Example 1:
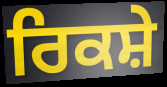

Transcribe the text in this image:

ਰਿਕਸ਼ੇ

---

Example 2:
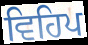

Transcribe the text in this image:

ਵਿਹਿਪ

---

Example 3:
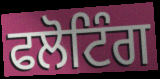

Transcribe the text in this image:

ਫਲੋਟਿੰਗ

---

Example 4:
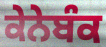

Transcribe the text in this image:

ਕੇਨੇਬੰਕ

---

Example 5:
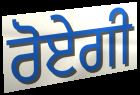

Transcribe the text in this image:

ਰੋਏਗੀ